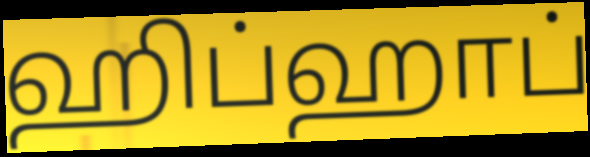
ஹிப்ஹாப்